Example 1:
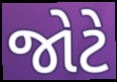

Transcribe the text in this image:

જોટે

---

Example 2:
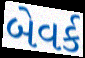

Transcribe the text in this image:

બેવર્ક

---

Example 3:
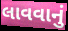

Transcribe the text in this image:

લાવવાનું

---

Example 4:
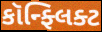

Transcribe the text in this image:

કૉન્ફ્લિક્ટ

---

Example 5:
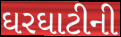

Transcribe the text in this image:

ઘરઘાટીની